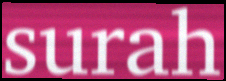
surah